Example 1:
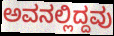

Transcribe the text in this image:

ಅವನಲ್ಲಿದ್ದವು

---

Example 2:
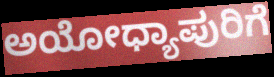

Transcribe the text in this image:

ಅಯೋಧ್ಯಾಪುರಿಗೆ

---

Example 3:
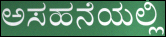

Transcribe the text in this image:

ಅಸಹನೆಯಲ್ಲಿ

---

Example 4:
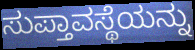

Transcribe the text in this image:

ಸುಪ್ತಾವಸ್ಥೆಯನ್ನು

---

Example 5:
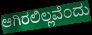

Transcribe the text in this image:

ಆಗಿರಲಿಲ್ಲವೆಂದು